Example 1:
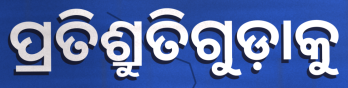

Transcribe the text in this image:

ପ୍ରତିଶ୍ରୁତିଗୁଡ଼ାକୁ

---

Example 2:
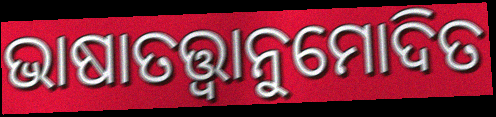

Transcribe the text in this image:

ଭାଷାତତ୍ତ୍ୱାନୁମୋଦିତ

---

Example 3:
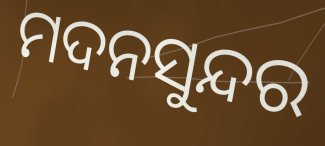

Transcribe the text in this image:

ମଦନସୁନ୍ଦର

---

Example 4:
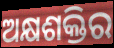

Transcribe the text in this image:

ଅକ୍ଷଶକ୍ତିର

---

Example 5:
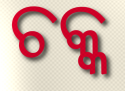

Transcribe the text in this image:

ଚକ୍କ